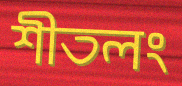
শীতলং